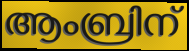
ആംബ്രിന്